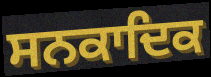
ਸਨਕਾਦਿਕ